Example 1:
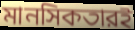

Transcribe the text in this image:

মানসিকতারই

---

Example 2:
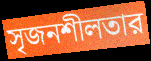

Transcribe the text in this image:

সৃজনশীলতার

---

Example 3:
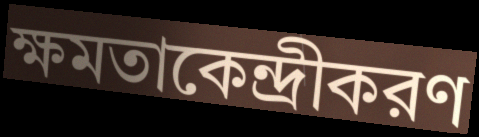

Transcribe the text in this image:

ক্ষমতাকেন্দ্রীকরণ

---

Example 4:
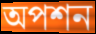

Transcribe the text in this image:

অপশন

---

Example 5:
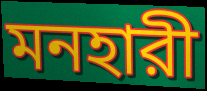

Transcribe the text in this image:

মনহারী